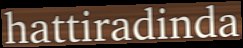
hattiradinda